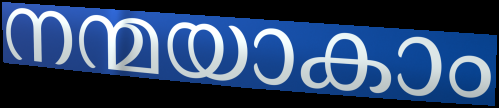
നന്മയാകാം